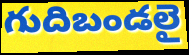
గుదిబండలై